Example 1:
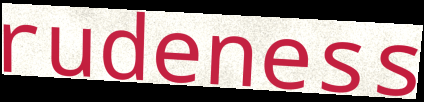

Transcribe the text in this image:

rudeness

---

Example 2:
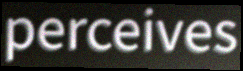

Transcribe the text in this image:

perceives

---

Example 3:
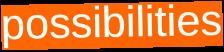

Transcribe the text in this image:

possibilities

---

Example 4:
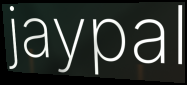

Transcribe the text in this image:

jaypal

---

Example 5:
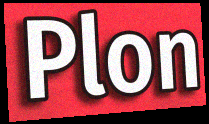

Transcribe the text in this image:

Plon